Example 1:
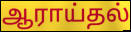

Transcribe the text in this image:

ஆராய்தல்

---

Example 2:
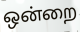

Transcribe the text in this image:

ஒன்றை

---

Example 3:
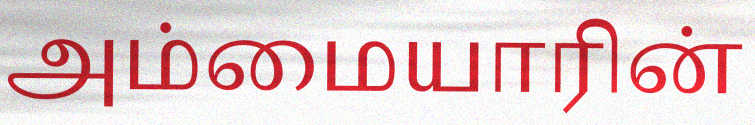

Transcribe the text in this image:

அம்மையாரின்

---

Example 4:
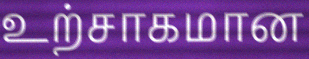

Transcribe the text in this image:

உற்சாகமான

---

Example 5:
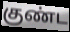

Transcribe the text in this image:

குண்ட